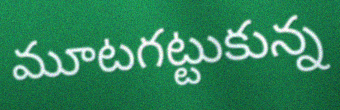
మూటగట్టుకున్న